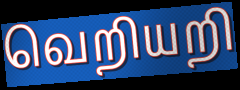
வெறியறி